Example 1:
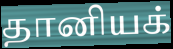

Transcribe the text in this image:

தானியக்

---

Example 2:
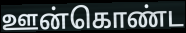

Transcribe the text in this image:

ஊன்கொண்ட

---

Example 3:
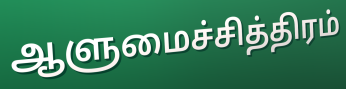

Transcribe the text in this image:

ஆளுமைச்சித்திரம்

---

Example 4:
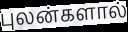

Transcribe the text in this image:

புலன்களால்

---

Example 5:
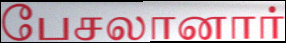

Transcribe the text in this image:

பேசலானார்